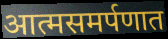
आत्मसमर्पणात